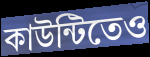
কাউন্টিতেও